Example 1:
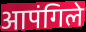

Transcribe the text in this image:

आपंगिले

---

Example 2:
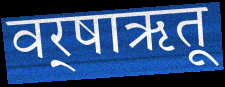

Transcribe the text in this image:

वर्षाऋतू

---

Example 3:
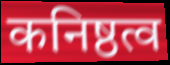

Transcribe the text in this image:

कनिष्ठत्व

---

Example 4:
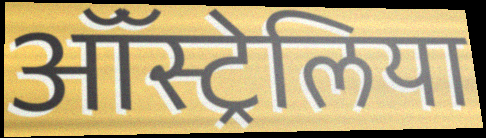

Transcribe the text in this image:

ऑॅस्ट्रेलिया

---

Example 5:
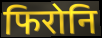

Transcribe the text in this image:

फिरोनि